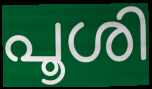
പൂശി